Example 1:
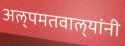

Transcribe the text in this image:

अल्पमतवाल्यांनी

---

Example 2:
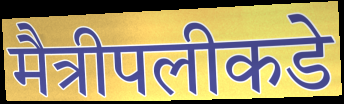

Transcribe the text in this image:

मैत्रीपलीकडे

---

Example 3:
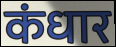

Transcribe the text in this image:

कंधार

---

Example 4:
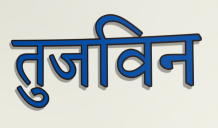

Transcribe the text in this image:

तुजविन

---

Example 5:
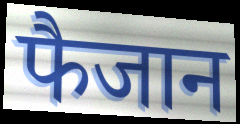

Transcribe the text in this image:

फैजान